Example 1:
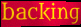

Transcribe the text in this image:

backing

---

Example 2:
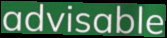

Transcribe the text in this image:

advisable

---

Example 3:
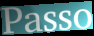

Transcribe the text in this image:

Passo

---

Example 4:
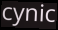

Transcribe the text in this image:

cynic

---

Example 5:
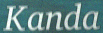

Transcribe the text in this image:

Kanda